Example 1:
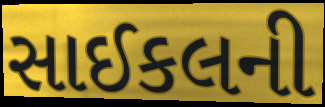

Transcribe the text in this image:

સાઈકલની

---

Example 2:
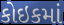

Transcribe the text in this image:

કોઇકમાં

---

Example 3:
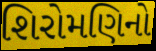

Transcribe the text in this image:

શિરોમણિનો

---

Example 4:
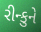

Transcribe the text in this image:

રીન્કુને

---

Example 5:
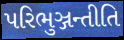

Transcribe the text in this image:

પરિભુઞ્જન્તીતિ